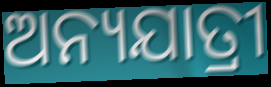
ଅନ୍ଯଯାତ୍ରୀ